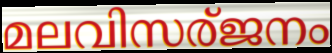
മലവിസര്ജനം